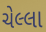
ચેલ્લા